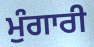
ਮੁੰਗਾਰੀ